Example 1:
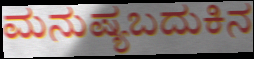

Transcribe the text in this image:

ಮನುಷ್ಯಬದುಕಿನ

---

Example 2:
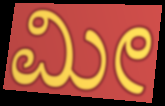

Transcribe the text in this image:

ಮೀ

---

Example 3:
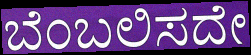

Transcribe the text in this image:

ಬೆಂಬಲಿಸದೇ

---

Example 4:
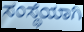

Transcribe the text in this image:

ಸಂಸ್ಥೆಯಾಗಿ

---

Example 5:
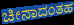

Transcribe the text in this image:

ಚೀನಾದಂತಹ